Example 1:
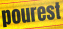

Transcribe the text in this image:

pourest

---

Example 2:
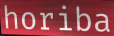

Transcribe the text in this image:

horiba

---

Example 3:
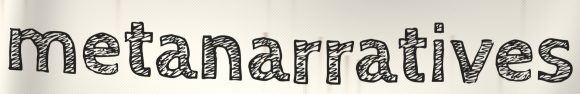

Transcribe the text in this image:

metanarratives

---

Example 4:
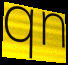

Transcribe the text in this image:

qn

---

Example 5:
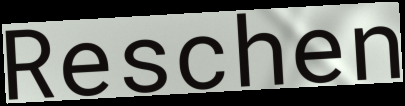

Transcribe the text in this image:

Reschen